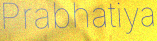
Prabhatiya